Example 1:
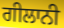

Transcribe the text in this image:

ਗੀਲਾਨੀ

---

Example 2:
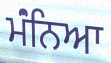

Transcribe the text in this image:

ਮੰਂਨਿਆ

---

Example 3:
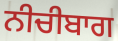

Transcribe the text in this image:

ਨੀਚੀਬਾਗ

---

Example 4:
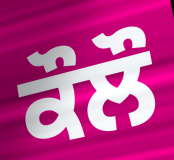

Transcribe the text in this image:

ਕੌਲੌ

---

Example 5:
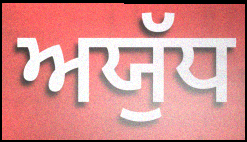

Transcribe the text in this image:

ਅਯੁੱਧ